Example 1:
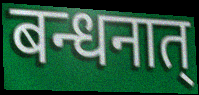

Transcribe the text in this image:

बन्धनात्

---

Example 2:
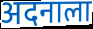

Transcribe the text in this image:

अदनाला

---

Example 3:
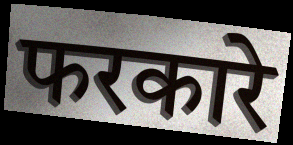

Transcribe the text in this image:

फरकारे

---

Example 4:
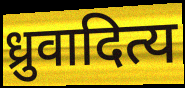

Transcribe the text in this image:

ध्रुवादित्य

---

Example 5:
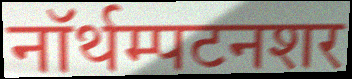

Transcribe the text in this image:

नॉर्थम्पटनशर